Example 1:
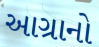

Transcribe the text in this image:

આગ્રાનો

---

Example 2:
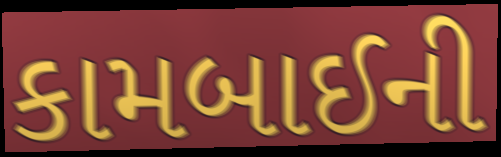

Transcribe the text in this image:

કામબાઈની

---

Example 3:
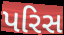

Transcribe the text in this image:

પરિસ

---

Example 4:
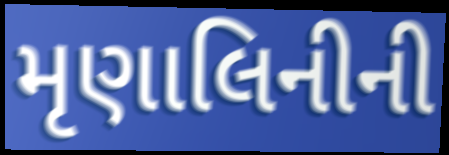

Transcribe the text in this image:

મૃણાલિનીની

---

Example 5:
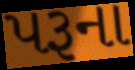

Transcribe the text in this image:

પરૂના